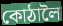
কোঠালৈ